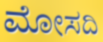
ಮೋಸದಿ